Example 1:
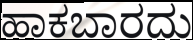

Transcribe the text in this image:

ಹಾಕಬಾರದು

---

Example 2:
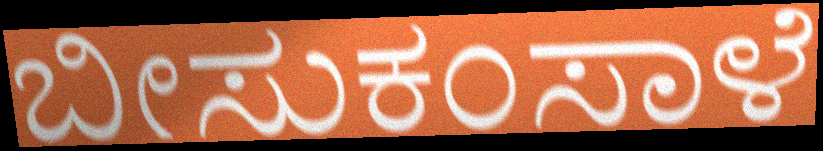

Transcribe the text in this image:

ಬೀಸುಕಂಸಾಳೆ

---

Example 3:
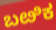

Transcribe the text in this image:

ಬೞಿಕ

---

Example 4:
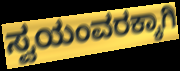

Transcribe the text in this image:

ಸ್ವಯಂವರಕ್ಕಾಗಿ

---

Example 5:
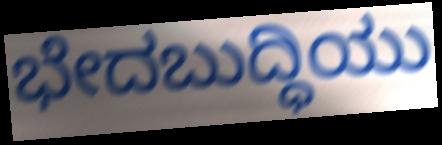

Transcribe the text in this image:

ಭೇದಬುದ್ಧಿಯು